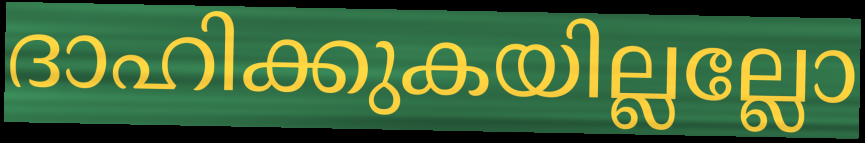
ദാഹിക്കുകയില്ലല്ലോ